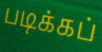
படிக்கப்